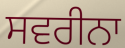
ਸਵਰੀਨਾ